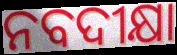
ନବଦୀକ୍ଷା